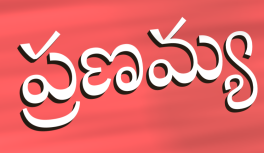
ప్రణమ్య